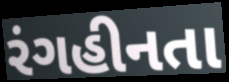
રંગહીનતા